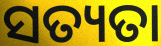
ସତ୍ୟତା